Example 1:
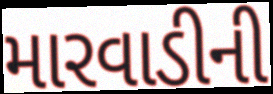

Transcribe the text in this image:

મારવાડીની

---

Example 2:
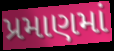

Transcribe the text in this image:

પ્રમાણમાં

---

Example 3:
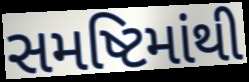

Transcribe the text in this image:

સમષ્ટિમાંથી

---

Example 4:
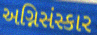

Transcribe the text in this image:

અગ્નિસંસ્કાર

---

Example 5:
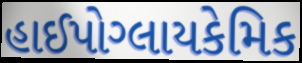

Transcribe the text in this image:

હાઈપોગ્લાયકેમિક